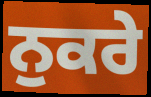
ਨੁਕਰੇ